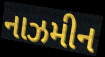
નાઝમીન